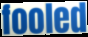
fooled